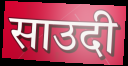
साउदी